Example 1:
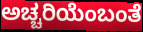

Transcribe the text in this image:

ಅಚ್ಚರಿಯೆಂಬಂತೆ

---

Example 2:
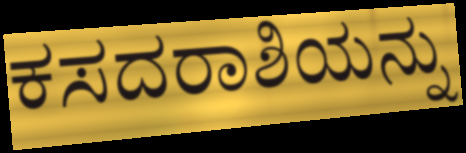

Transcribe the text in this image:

ಕಸದರಾಶಿಯನ್ನು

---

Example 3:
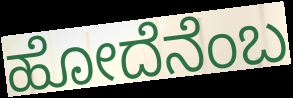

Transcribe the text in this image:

ಹೋದೆನೆಂಬ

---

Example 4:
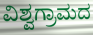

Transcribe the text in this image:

ವಿಶ್ವಗ್ರಾಮದ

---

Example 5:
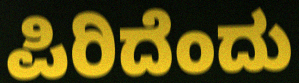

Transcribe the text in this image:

ಪಿರಿದೆಂದು